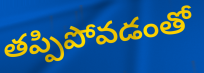
తప్పిపోవడంతో